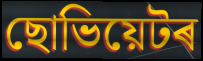
ছোভিয়েটৰ